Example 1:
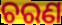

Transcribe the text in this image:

ଚରଣ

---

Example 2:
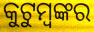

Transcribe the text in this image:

କୁଟୁମ୍ବଙ୍କର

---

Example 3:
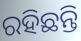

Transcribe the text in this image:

ରହିଛନ୍ତି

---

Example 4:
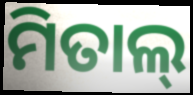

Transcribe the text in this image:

ମିତାଲ୍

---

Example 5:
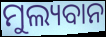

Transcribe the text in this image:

ମୁଲ୍ୟବାନ